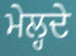
ਮੇਲ੍ਹਦੇ